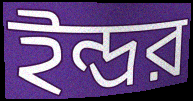
ইন্দ্রর